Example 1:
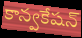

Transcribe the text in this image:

కాన్వకేషన్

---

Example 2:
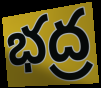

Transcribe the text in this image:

భద్ర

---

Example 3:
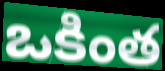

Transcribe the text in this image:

ఒకింత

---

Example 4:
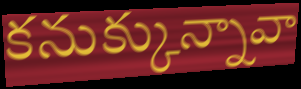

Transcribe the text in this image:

కనుక్కున్నావా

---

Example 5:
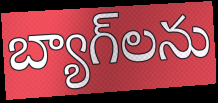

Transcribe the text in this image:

బ్యాగ్‌లను